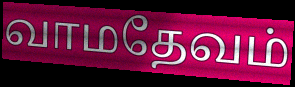
வாமதேவம்